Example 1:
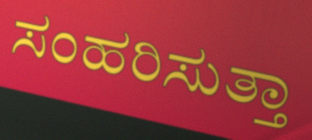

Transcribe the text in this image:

ಸಂಹರಿಸುತ್ತಾ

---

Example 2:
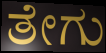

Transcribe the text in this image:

ತೇಗು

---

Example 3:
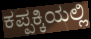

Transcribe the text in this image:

ಕಪ್ಪಕ್ಕಿಯಲ್ಲಿ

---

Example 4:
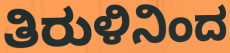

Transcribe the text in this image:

ತಿರುಳಿನಿಂದ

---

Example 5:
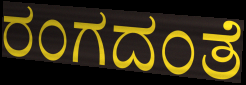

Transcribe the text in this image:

ರಂಗದಂತೆ